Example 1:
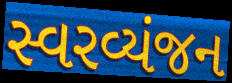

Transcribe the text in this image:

સ્વરવ્યંજન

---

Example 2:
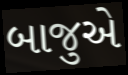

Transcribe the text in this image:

બાજુએ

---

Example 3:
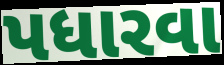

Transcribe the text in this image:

પધારવા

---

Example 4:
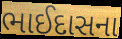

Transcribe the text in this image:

ભાઈદાસના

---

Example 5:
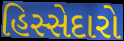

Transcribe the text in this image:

હિસ્સેદારો